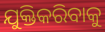
ଯୁକ୍ତିକରିବାକୁ